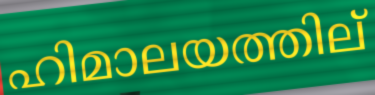
ഹിമാലയത്തില്